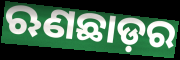
ଋଣଛାଡ଼ର